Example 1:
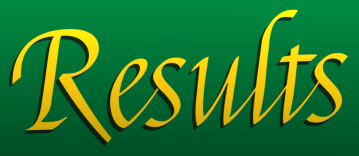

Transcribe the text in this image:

Results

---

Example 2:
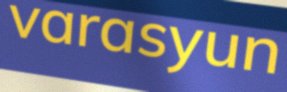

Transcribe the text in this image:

varasyun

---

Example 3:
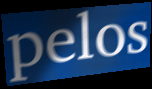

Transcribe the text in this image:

pelos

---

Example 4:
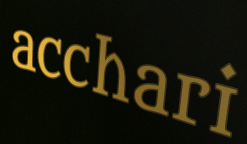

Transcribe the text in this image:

acchari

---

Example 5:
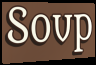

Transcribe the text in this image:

Soup